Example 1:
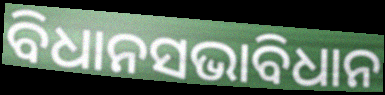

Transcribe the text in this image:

ବିଧାନସଭାବିଧାନ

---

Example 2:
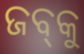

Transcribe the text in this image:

ଜବ୍‍କୁ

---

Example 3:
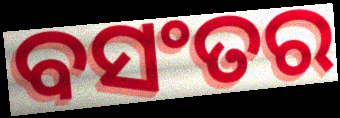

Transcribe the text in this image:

ବସଂତର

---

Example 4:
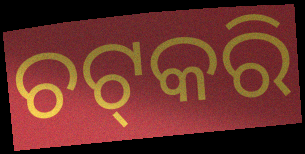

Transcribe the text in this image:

ଚଟ୍‌କରି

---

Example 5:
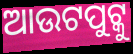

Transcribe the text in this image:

ଆଉଟପୁଟ୍କୁ